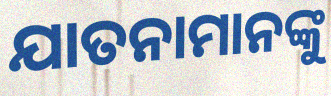
ଯାତନାମାନଙ୍କୁ